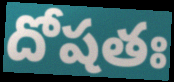
దోషతః